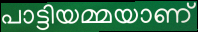
പാട്ടിയമ്മയാണ്